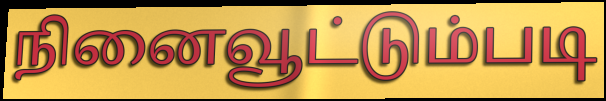
நினைவூட்டும்படி